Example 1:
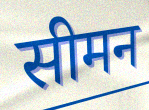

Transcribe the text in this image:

सीमन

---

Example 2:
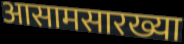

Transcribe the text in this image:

आसामसारख्या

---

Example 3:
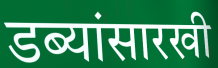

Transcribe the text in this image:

डब्यांसारखी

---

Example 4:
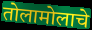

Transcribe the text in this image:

तोलामोलाचे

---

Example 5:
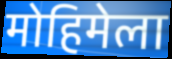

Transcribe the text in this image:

मोहिमेला